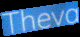
Theva